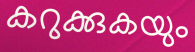
കറുക്കുകയും